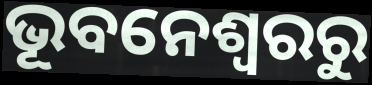
ଭୂବନେଶ୍ୱରରୁ